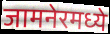
जामनेरमध्ये